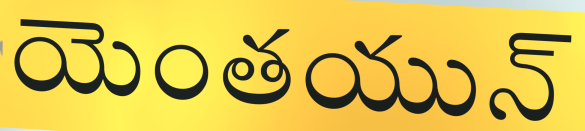
యెంతయున్